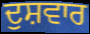
ਦੁਸ਼ਵਾਰ